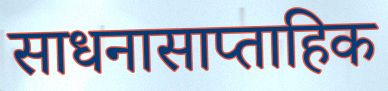
साधनासाप्ताहिक